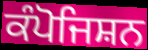
ਕੰਪੋਜਿਸ਼ਨ